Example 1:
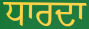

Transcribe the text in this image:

ਧਾਰਦਾ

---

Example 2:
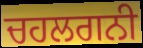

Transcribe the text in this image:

ਚਹਲਗਨੀ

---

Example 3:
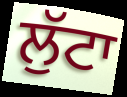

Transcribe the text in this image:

ਲੁੱਟਾ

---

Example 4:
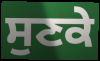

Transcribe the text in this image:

ਸੁਣਕੇ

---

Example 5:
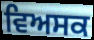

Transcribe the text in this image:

ਵਿਅਸਕ